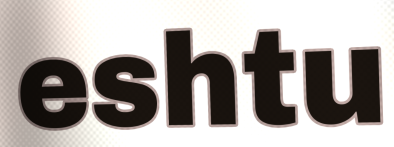
eshtu